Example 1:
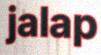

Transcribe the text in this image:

jalap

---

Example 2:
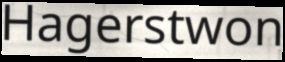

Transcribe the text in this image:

Hagerstwon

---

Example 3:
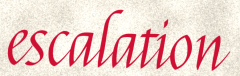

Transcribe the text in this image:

escalation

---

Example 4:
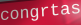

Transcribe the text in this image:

congrtas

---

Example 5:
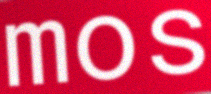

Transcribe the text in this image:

mos